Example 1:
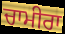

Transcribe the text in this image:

ਚਾਮੀਰਾ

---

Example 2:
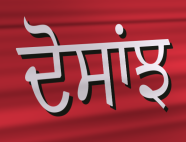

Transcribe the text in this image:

ਦੋਸਾਂਝ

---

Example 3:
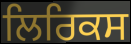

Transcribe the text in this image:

ਲਿਰਿਕਸ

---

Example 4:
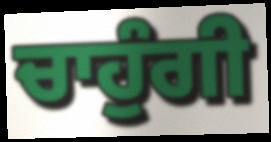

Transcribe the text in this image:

ਚਾਹੁੰਗੀ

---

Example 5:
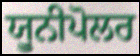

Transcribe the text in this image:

ਯੂਨੀਪੋਲਰ